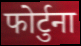
फोर्टुना